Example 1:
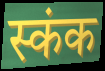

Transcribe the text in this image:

स्कंक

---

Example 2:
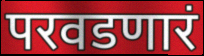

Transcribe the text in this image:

परवडणारं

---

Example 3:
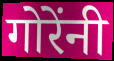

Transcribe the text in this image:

गोरेंनी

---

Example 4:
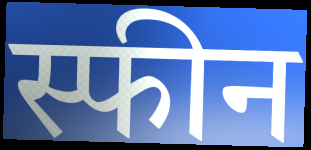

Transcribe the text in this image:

स्फीन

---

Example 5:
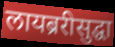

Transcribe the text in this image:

लायब्ररीसुद्धा